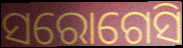
ସରୋଗେସି